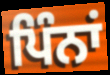
ਪਿੰਨਾਂ